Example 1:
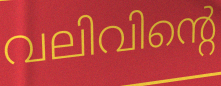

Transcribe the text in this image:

വലിവിന്റെ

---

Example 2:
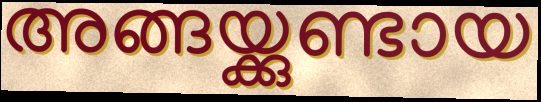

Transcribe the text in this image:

അങ്ങയ്ക്കുണ്ടായ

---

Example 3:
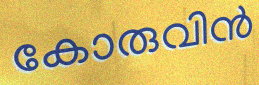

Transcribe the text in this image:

കോരുവിൻ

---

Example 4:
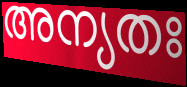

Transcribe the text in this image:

അന്യതഃ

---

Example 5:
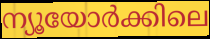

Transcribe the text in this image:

ന്യൂയോർക്കിലെ